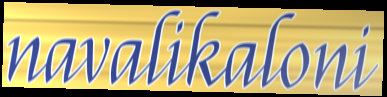
navalikaloni